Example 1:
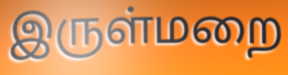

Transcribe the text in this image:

இருள்மறை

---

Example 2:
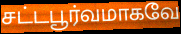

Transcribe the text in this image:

சட்டபூர்வமாகவே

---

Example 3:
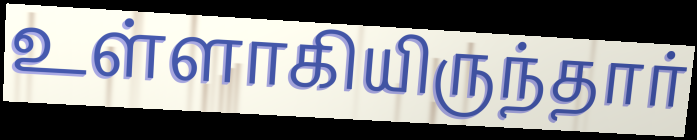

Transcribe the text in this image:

உள்ளாகியிருந்தார்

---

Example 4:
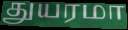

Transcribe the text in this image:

துயரமா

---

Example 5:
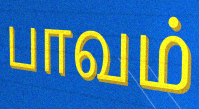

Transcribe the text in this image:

பாவம்